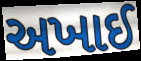
અખાઈ